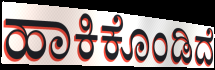
ಹಾಕಿಕೊಂಡಿದೆ